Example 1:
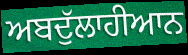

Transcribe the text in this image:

ਅਬਦੁੱਲਾਹੀਆਨ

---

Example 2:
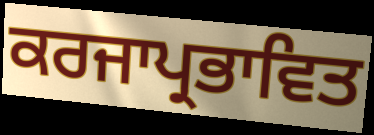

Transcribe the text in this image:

ਕਰਜਾਪ੍ਰਭਾਵਿਤ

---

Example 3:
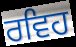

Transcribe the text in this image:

ਰਵਿਹ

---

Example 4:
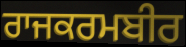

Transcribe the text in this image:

ਰਾਜਕਰਮਬੀਰ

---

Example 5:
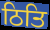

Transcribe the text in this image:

ਠਿਤਿ